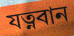
যত্নবান